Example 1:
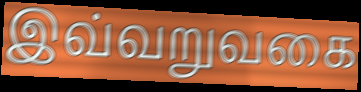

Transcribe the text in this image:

இவ்வறுவகை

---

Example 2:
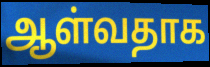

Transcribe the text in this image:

ஆள்வதாக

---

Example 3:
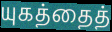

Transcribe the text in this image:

யுகத்தைத்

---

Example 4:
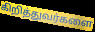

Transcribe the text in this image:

கிறித்துவர்களை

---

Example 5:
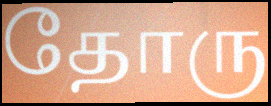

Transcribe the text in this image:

தோரு